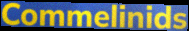
Commelinids